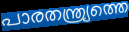
പാരതന്ത്ര്യത്തെ